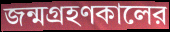
জন্মগ্রহণকালের